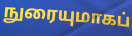
நுரையுமாகப்